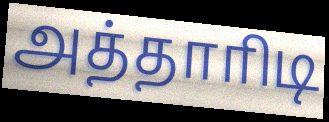
அத்தாரிடி